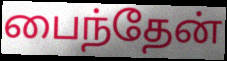
பைந்தேன்